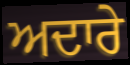
ਅਦਾਰੇ